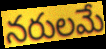
నరులమే